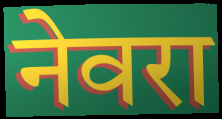
नेवरा